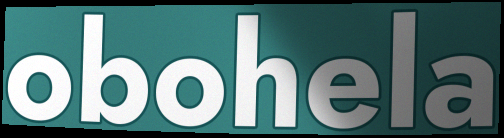
obohela